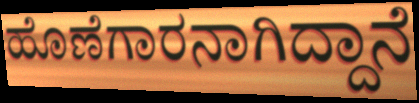
ಹೊಣೆಗಾರನಾಗಿದ್ದಾನೆ